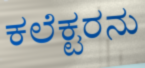
ಕಲೆಕ್ಟರನು